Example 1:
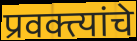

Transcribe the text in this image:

प्रवक्त्यांचे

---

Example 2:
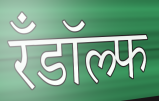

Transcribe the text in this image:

रँडॉल्फ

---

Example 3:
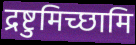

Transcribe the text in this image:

द्रष्टुमिच्छामि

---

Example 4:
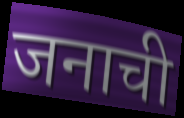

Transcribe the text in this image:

जनाची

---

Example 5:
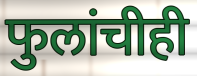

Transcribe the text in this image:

फुलांचीही